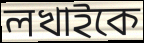
লখাইকে